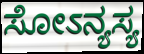
ಸೋಽನ್ಯಸ್ಯ